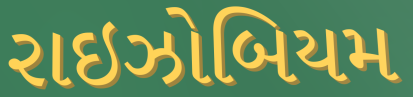
રાઇઝોબિયમ